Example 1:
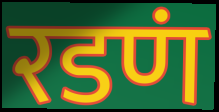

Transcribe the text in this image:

रडणं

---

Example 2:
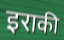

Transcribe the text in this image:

इराकी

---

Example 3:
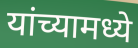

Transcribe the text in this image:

यांच्यामध्ये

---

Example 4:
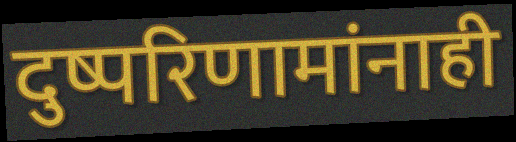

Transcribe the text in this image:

दुष्परिणामांनाही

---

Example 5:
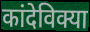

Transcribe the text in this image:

कांदेविक्या